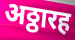
अठ्ठारह